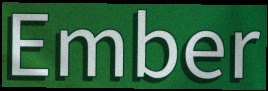
Ember